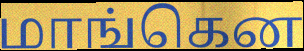
மாங்கென